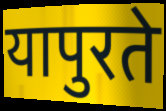
यापुरते